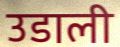
उडाली